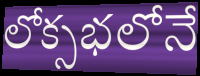
లోక్సభలోనే